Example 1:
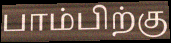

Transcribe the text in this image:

பாம்பிற்கு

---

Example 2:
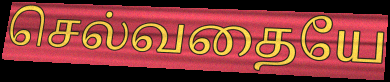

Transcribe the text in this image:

செல்வதையே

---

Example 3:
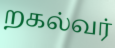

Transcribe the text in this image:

றகல்வர்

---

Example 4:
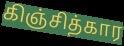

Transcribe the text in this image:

கிஞ்சித்கார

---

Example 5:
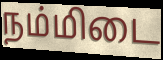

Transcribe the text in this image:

நம்மிடை